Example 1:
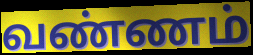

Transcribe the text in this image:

வண்ணம்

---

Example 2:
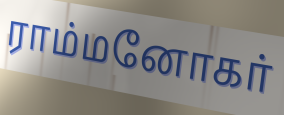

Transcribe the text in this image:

ராம்மனோகர்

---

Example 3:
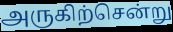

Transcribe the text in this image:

அருகிற்சென்று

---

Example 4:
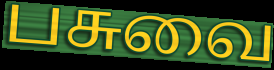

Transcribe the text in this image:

பசுவை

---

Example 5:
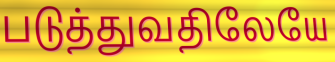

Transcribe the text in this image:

படுத்துவதிலேயே